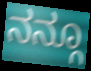
ನನ್ಗೂ